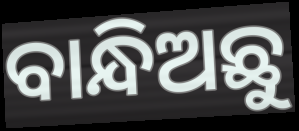
ବାନ୍ଧିଅଛୁ